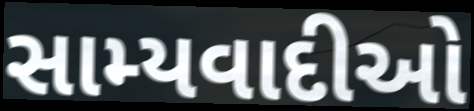
સામ્યવાદીઓ